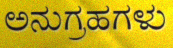
ಅನುಗ್ರಹಗಳು